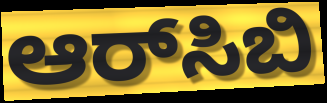
ಆರ್‌ಸಿಬಿ